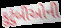
કુટુંબીઓની